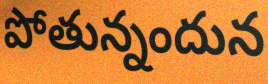
పోతున్నందున